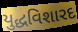
યુદ્ધવિશારદ